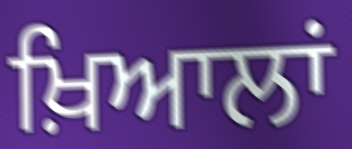
ਖ਼ਿਆਲਾਂ